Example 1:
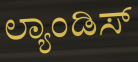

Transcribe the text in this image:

ಲ್ಯಾಂಡಿಸ್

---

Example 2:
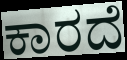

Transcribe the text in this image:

ಕಾರದೆ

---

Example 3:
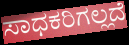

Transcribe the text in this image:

ಸಾಧಕರಿಗಲ್ಲದೆ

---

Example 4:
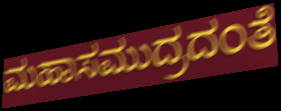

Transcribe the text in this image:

ಮಹಾಸಮುದ್ರದಂತೆ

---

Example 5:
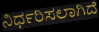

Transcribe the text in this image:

ನಿರ್ಧರಿಸಲಾಗಿದೆ